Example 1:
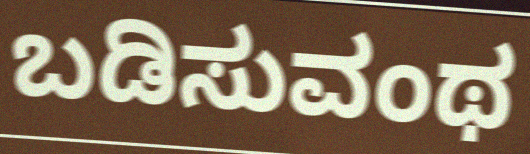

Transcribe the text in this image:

ಬಡಿಸುವಂಥ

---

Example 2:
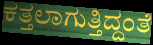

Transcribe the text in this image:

ಕತ್ತಲಾಗುತ್ತಿದ್ದಂತೆ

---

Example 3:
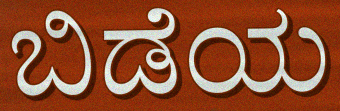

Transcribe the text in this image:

ಬಿಡೆಯ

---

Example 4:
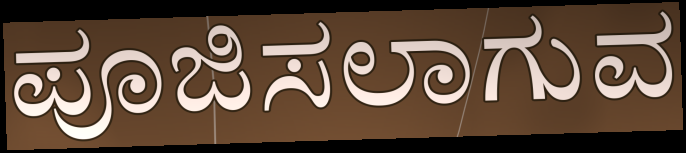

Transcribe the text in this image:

ಪೂಜಿಸಲಾಗುವ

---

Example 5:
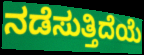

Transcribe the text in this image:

ನಡೆಸುತ್ತಿದೆಯೆ